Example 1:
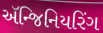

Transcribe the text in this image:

ઍન્જિનિયરિંગ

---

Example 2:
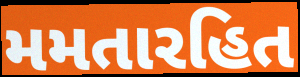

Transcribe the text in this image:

મમતારહિત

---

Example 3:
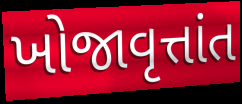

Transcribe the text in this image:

ખોજાવૃત્તાંત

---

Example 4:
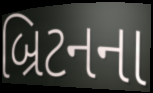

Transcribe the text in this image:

બ્રિટનના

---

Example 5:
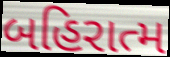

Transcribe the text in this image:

બહિરાત્મ